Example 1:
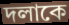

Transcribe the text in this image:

দলাকে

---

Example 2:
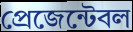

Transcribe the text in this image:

প্রেজেন্টেবল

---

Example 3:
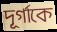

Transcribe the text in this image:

দূর্গাকে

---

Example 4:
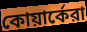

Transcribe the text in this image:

কোয়ার্কেরা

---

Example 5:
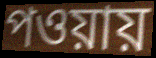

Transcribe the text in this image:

পওয়ায়